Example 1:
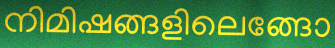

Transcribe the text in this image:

നിമിഷങ്ങളിലെങ്ങോ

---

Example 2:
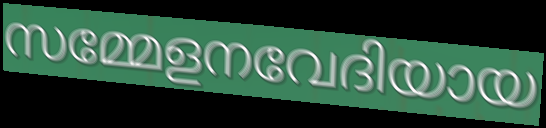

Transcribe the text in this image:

സമ്മേളനവേദിയായ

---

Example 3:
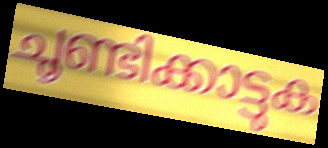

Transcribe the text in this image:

ചൂണ്ടിക്കാട്ടുക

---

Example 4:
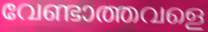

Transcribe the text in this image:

വേണ്ടാത്തവളെ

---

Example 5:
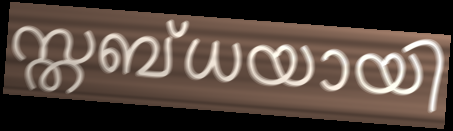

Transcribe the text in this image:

സ്തബ്ധയായി